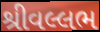
શ્રીવલ્લભ